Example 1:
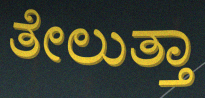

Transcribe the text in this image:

ತೇಲುತ್ತಾ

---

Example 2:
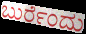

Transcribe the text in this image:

ಬುರ್ರೆಂದು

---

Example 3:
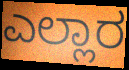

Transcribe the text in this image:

ಎಲ್ಲಾರ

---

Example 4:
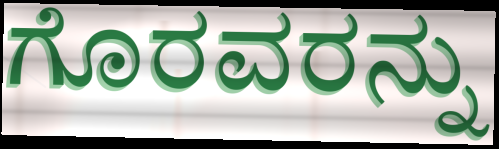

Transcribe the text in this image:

ಗೊರವರನ್ನು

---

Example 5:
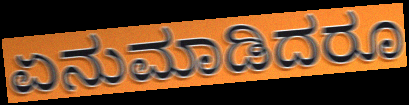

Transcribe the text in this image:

ಏನುಮಾಡಿದರೂ